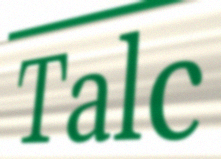
Talc